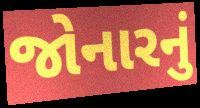
જોનારનું